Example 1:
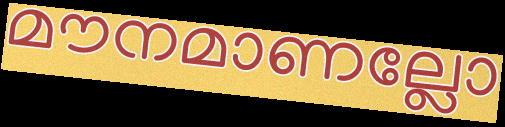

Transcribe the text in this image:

മൗനമാണല്ലോ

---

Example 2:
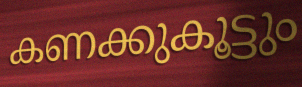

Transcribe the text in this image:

കണക്കുകൂട്ടും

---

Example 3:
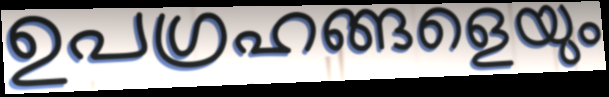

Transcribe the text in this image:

ഉപഗ്രഹങ്ങളെയും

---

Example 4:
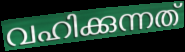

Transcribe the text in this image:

വഹിക്കുന്നത്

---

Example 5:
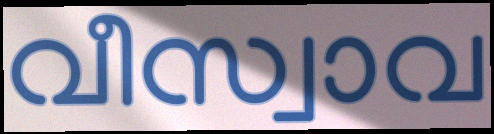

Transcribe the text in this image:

വീസ്വാവ